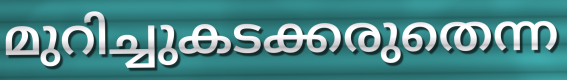
മുറിച്ചുകടക്കരുതെന്ന